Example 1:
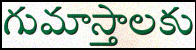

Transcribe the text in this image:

గుమాస్తాలకు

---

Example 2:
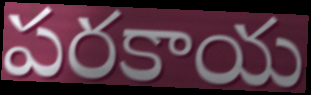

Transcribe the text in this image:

పరకాయ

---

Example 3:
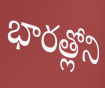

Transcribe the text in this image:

భారత్లోని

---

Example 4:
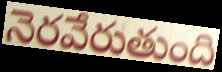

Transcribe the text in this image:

నెరవేరుతుంది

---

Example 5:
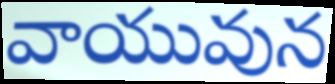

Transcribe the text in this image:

వాయువున